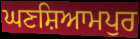
ਘਣਸ਼ਿਆਮਪੁਰ